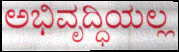
ಅಭಿವೃದ್ಧಿಯಲ್ಲ